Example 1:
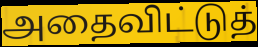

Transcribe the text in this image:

அதைவிட்டுத்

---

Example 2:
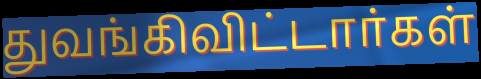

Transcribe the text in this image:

துவங்கிவிட்டார்கள்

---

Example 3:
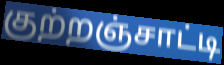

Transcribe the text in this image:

குற்றஞ்சாட்டி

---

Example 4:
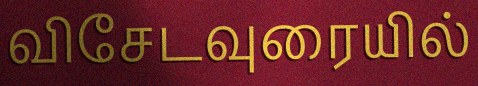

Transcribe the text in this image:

விசேடவுரையில்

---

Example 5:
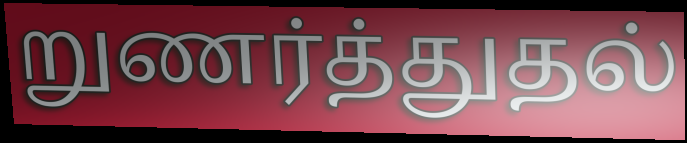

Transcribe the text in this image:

றுணர்த்துதல்